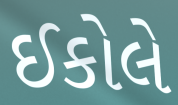
ઈકોલે